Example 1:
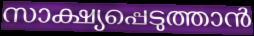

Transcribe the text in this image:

സാക്ഷ്യപ്പെടുത്താൻ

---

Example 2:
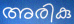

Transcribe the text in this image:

അരികു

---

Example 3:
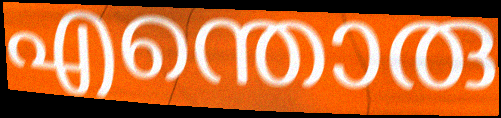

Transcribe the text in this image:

എന്തൊരു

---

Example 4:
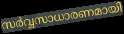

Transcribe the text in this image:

സർവ്വസാധാരണമായി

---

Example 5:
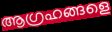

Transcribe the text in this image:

ആഗ്രഹങ്ങളെ